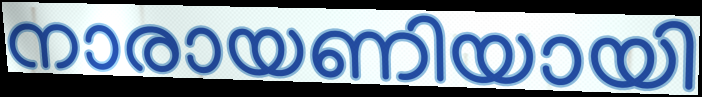
നാരായണിയായി